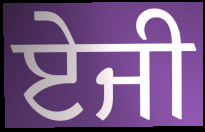
ਏਜੀ